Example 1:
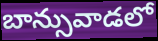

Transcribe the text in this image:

బాన్సువాడలో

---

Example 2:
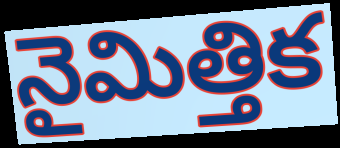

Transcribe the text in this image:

నైమిత్తిక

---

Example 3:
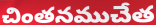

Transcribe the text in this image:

చింతనముచేత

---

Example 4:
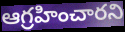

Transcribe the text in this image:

ఆగ్రహించారని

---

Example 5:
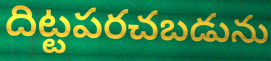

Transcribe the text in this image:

దిట్టపరచబడును